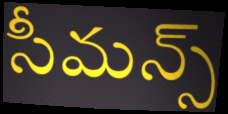
సీమన్స్